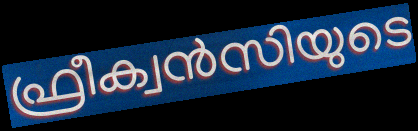
ഫ്രീക്വൻസിയുടെ